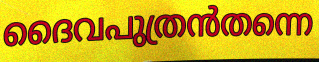
ദൈവപുത്രൻതന്നെ